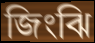
জিংঝি